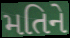
મતિને